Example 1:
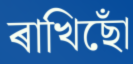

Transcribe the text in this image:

ৰাখিছোঁ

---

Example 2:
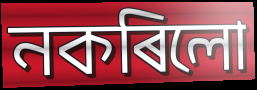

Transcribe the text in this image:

নকৰিলো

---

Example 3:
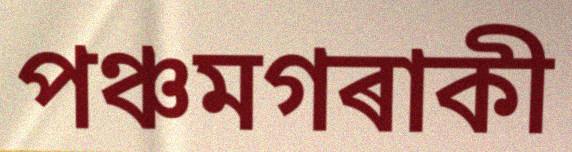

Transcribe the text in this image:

পঞ্চমগৰাকী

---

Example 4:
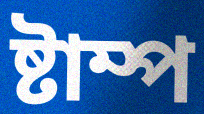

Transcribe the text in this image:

ষ্টাম্প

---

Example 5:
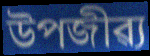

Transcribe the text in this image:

উপজীৱ্য